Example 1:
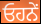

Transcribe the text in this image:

ਓਹਨੇੰ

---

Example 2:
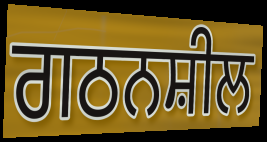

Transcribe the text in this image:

ਗਠਨਸ਼ੀਲ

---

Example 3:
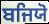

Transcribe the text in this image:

ਬਜਿਯੋ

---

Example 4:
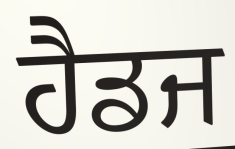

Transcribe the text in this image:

ਹੈਡਜ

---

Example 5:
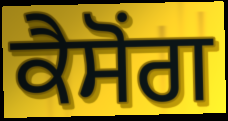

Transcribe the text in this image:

ਕੈਸੋਂਗ